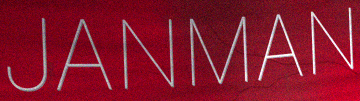
JANMAN